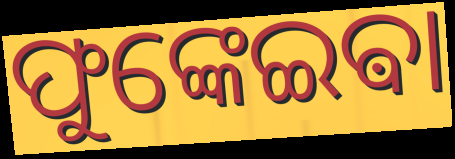
ଫୁଙ୍କେଇଵା